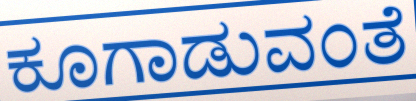
ಕೂಗಾಡುವಂತೆ